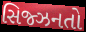
સિજ્ઝનતો